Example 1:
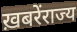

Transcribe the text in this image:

ख़बरेंराज्य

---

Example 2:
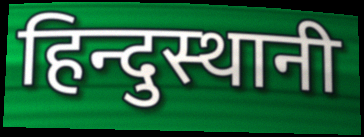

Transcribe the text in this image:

हिन्दुस्थानी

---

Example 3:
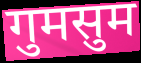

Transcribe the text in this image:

गुमसुम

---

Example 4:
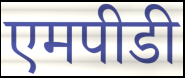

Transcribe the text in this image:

एमपीडी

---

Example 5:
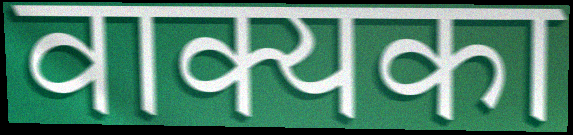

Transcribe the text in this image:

वाक्यका